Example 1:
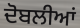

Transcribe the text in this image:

ਦੋਬਲੀਆਂ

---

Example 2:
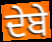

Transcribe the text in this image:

ਦੇਬੇ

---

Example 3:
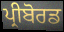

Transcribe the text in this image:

ਪ੍ਰੀਬੋਰਡ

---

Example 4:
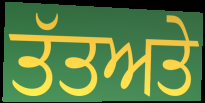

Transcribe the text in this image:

ਤੱਤਅਤੇ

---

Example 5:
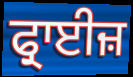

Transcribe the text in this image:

ਫ੍ਰਾਈਜ਼